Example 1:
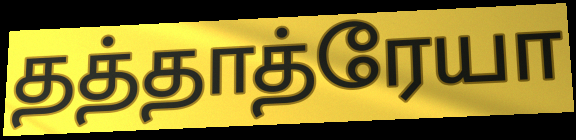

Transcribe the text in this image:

தத்தாத்ரேயா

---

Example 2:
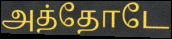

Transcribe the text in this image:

அத்தோடே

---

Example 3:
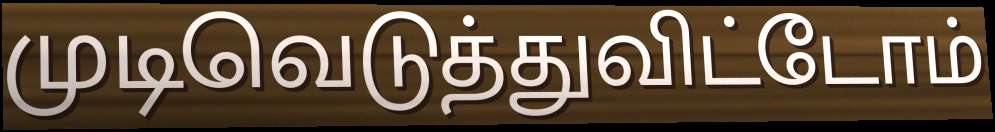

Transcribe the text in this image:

முடிவெடுத்துவிட்டோம்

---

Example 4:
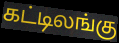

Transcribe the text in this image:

கட்டிலங்கு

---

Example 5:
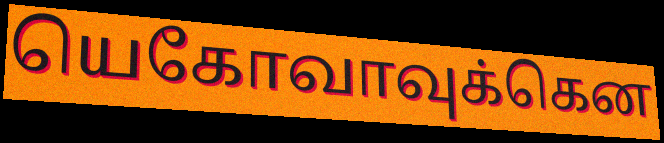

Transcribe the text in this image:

யெகோவாவுக்கென